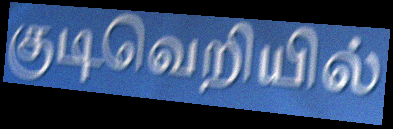
குடிவெறியில்